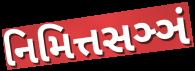
નિમિત્તસઞ્ઞં